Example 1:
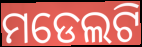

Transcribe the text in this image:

ମଡେଲଟି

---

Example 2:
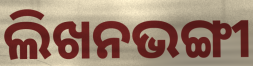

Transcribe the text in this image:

ଲିଖନଭଙ୍ଗୀ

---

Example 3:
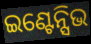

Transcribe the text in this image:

ଇଣ୍ଟେନ୍ସିଭ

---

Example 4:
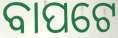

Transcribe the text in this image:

ବାପଟେ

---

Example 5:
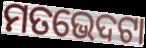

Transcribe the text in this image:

ମତଭେଦଟା